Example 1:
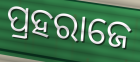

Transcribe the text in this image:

ପ୍ରହରାଜେ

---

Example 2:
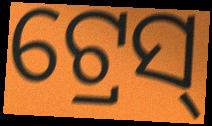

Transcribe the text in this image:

ଟ୍ରେସ୍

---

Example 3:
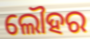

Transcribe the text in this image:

ଲୌହର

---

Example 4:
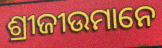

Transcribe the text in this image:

ଶ୍ରୀଜୀଉମାନେ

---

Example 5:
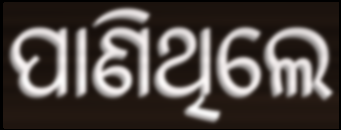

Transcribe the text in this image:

ପାଣିଥିଲେ